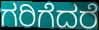
ಗರಿಗೆದರೆ